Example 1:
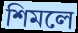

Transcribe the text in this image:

শিমলে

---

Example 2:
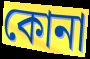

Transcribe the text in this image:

কোনা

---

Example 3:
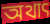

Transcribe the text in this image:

অথাৎ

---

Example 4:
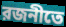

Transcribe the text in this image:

রজনীতে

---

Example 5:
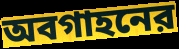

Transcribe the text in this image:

অবগাহনের